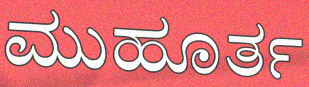
ಮುಹೂರ್ತ